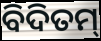
ବିଦିତମ୍